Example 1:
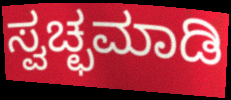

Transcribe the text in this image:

ಸ್ವಚ್ಛಮಾಡಿ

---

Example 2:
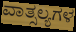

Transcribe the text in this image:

ವಾತ್ಸಲ್ಯಗಳ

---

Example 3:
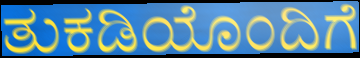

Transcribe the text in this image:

ತುಕಡಿಯೊಂದಿಗೆ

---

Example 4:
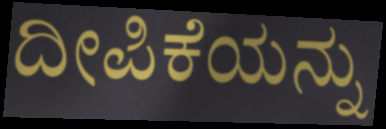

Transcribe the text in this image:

ದೀಪಿಕೆಯನ್ನು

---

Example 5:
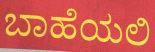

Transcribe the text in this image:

ಬಾಹೆಯಲಿ